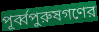
পূর্ব্বপুরুষগণের